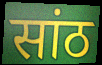
सांठ